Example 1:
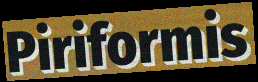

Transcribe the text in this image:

Piriformis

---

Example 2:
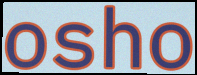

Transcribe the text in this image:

osho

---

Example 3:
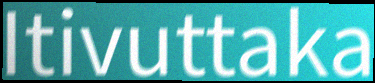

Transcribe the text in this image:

Itivuttaka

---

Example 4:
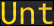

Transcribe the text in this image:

Unt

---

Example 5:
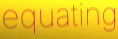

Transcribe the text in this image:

equating